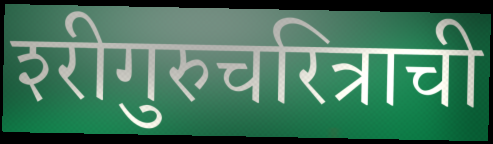
श्रीगुरुचरित्राची